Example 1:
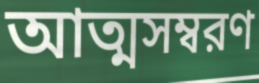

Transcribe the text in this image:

আত্মসম্বরণ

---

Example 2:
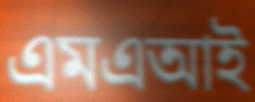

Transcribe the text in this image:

এমএআই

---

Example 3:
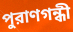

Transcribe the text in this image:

পুরাণগন্ধী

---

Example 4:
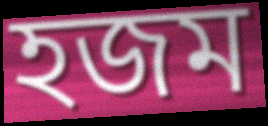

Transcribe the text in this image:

হজম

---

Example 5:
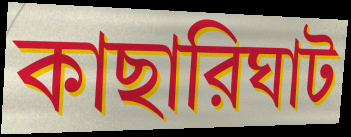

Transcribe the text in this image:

কাছারিঘাট